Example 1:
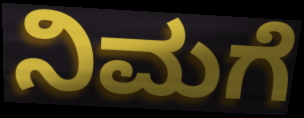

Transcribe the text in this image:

ನಿಮಗೆ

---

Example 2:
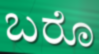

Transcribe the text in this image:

ಬರೊ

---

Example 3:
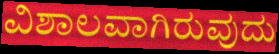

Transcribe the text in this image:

ವಿಶಾಲವಾಗಿರುವುದು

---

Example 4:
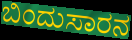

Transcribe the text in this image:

ಬಿಂದುಸಾರನ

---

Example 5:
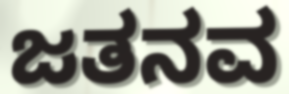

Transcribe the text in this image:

ಜತನವ